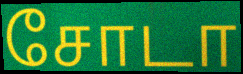
சோடா